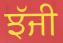
ਝੱਜੀ